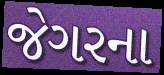
જેગરના